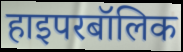
हाइपरबॉलिक